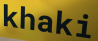
khaki